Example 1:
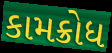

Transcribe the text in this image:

કામક્રોધ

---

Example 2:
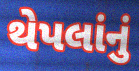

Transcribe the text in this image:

થેપલાંનું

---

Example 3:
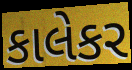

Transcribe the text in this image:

કાલેકર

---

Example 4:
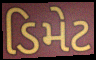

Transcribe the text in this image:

ડિમેટ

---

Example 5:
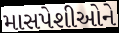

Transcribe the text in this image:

માસપેશીઓને